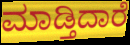
ಮಾಡ್ತಿದಾರೆ